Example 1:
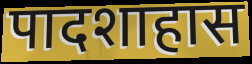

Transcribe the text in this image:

पादशाहास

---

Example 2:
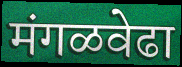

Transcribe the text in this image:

मंगळवेढा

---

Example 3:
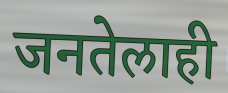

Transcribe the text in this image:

जनतेलाही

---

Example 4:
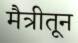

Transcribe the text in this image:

मैत्रीतून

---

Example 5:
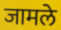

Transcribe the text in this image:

जामले